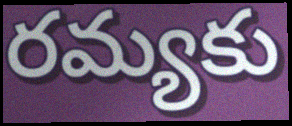
రమ్యకు